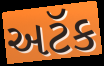
અટૅક